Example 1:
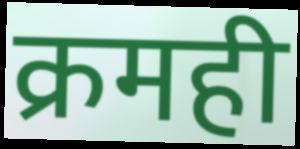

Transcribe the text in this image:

क्रमही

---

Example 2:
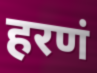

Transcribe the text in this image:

हरणं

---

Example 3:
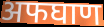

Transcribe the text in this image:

अफघाण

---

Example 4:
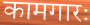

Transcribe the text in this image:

कामगारः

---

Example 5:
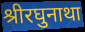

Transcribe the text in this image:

श्रीरघुनाथा